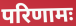
परिणामः